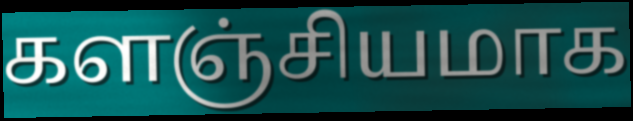
களஞ்சியமாக